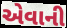
એવાની